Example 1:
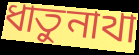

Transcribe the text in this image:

ধাতুনাথা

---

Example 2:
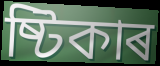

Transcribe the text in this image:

ষ্টিকাৰ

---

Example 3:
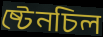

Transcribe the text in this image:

ষ্টেনচিল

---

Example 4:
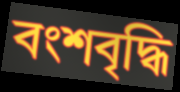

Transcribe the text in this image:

বংশবৃদ্ধি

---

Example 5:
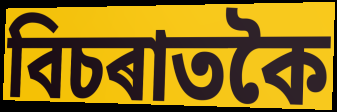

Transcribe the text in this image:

বিচৰাতকৈ